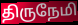
திருநேமி